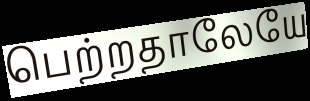
பெற்றதாலேயே